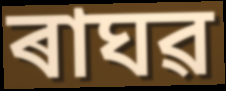
ৰাঘৱ